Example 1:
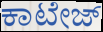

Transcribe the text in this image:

ಕಾಟೇಜ್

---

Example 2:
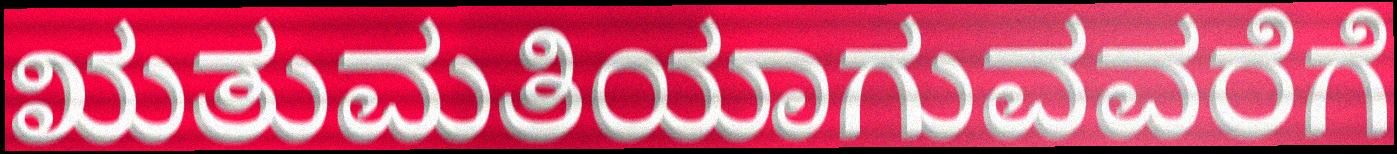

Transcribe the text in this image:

ಋತುಮತಿಯಾಗುವವರೆಗೆ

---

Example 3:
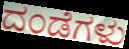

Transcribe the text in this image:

ದಂಡೆಗಳು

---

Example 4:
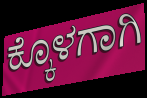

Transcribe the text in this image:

ಕ್ಕೊಳಗಾಗಿ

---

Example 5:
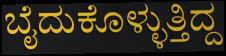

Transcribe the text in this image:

ಬೈದುಕೊಳ್ಳುತ್ತಿದ್ದ